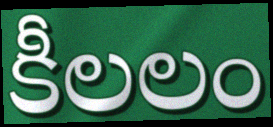
కీలలం